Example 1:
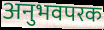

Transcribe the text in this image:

अनुभवपरक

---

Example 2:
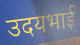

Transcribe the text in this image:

उदयभाई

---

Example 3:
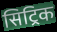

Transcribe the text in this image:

सिट्रिक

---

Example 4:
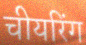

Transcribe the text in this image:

चीयरिंग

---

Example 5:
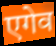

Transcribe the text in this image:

एगेव